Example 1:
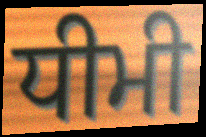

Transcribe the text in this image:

ਧੀਮੀ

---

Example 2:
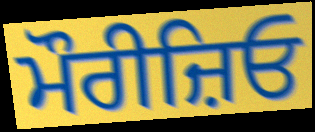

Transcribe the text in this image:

ਮੌਰੀਜ਼ਿਓ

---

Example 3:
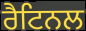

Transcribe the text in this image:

ਰੈਟਿਨਲ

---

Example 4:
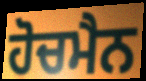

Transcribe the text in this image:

ਹੋਚਮੈਨ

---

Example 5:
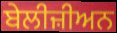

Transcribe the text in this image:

ਬੇਲੀਜ਼ੀਅਨ